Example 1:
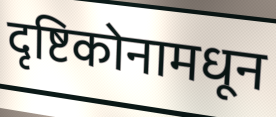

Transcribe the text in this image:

दृष्टिकोनामधून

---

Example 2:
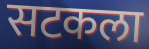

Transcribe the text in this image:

सटकला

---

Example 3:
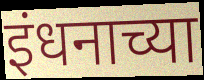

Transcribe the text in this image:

इंधनाच्या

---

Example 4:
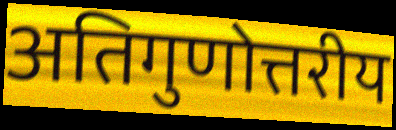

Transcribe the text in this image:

अतिगुणोत्तरीय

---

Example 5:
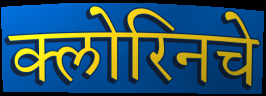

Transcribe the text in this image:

क्लोरिनचे